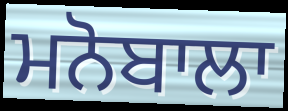
ਮਨੋਬਾਲਾ